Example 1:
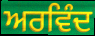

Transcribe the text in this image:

ਅਰਵਿੰਦ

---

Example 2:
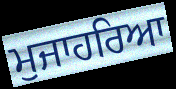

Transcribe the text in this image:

ਮੁਜਾਹਰਿਆ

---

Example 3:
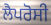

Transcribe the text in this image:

ਲੈਪਰੋਸੀ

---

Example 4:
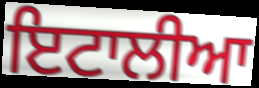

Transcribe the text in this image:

ਇਟਾਲੀਆ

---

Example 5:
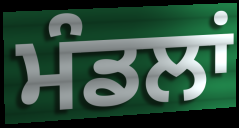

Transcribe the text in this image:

ਮੰਡਲਾਂ